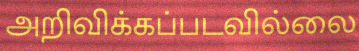
அறிவிக்கப்படவில்லை